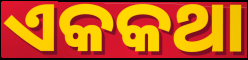
ଏକକଥା